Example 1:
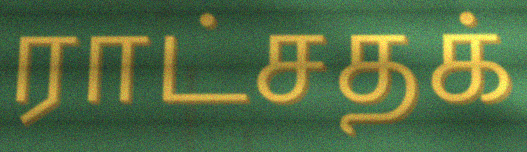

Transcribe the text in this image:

ராட்சதக்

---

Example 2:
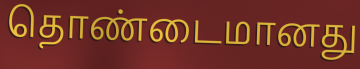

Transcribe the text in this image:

தொண்டைமானது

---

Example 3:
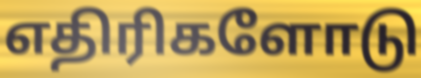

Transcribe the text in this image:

எதிரிகளோடு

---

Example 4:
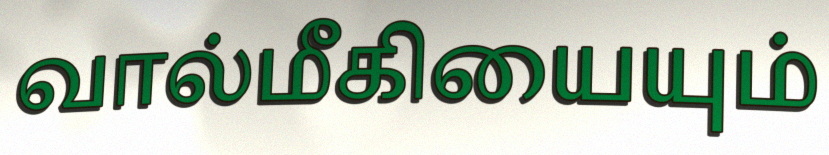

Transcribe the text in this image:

வால்மீகியையும்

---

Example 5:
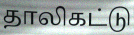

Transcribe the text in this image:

தாலிகட்டு